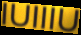
IUIIIU